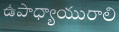
ఉపాధ్యాయురాలి